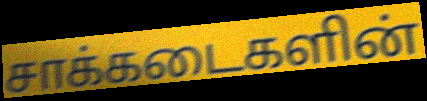
சாக்கடைகளின்